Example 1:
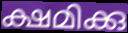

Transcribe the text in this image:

ക്ഷമിക്കു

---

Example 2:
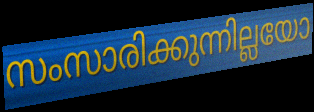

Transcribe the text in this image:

സംസാരിക്കുന്നില്ലയോ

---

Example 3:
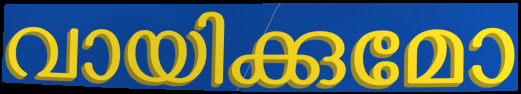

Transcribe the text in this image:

വായിക്കുമോ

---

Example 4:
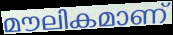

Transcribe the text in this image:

മൗലികമാണ്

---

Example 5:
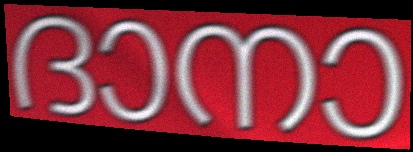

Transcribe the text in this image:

ദാനാ